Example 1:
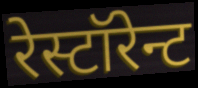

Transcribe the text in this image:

रेस्टॉरेन्ट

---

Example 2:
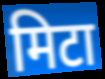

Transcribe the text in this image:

मिटा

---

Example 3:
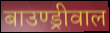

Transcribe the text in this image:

बाउण्ड्रीवाल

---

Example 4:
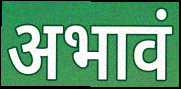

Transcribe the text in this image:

अभावं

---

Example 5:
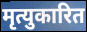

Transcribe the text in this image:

मृत्युकारित